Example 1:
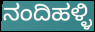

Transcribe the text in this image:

ನಂದಿಹಳ್ಳಿ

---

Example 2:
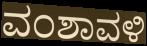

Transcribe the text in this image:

ವಂಶಾವಳಿ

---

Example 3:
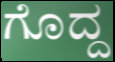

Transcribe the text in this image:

ಗೊದ್ದ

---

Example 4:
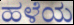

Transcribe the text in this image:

ಹಳೆಯ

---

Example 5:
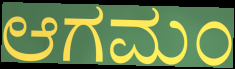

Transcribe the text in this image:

ಆಗಮಂ